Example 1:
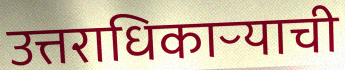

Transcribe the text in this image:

उत्तराधिकाऱ्याची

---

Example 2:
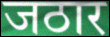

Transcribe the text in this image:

जठार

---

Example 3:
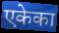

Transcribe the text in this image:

एकेका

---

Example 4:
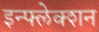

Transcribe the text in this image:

इन्फ्लेक्शन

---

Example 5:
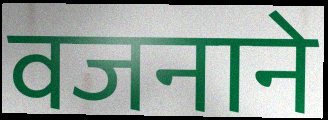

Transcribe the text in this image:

वजनाने